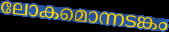
ലോകമൊന്നടങ്കം